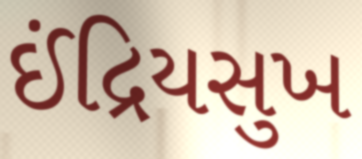
ઈંદ્રિયસુખ